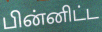
பின்னிட்ட